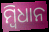
ମ୍ବିଧାନ